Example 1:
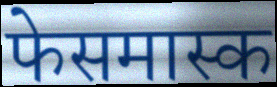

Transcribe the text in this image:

फेसमास्क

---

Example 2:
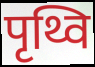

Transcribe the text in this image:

पृथ्वि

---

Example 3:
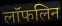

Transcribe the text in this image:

लॉफलिन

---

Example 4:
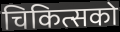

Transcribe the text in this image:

चिकित्सको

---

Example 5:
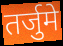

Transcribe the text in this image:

तर्जुमे